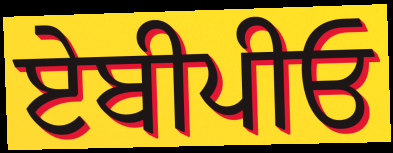
ਏਬੀਪੀਓ